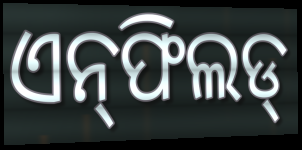
ଏନ୍‌ଫିଲଡ୍